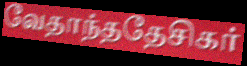
வேதாந்ததேசிகர்